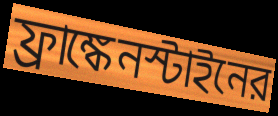
ফ্রাঙ্কেনস্টাইনের